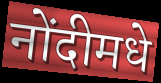
नोंदीमधे